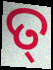
ତ୍